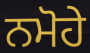
ਨਮੋਹੇ